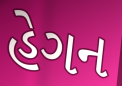
હેગન